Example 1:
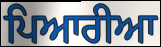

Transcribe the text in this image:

ਪਿਆਰੀਆ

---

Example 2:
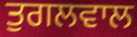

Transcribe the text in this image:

ਤੁਗਲਵਾਲ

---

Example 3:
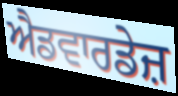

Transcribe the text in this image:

ਐਡਵਾਰਡੇਜ਼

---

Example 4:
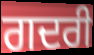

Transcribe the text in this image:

ਗਦਰੀ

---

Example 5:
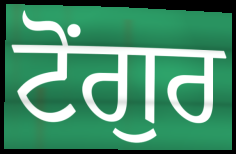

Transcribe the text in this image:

ਟੋਂਗੁਰ